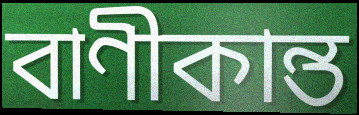
বাণীকান্ত